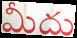
మీదు